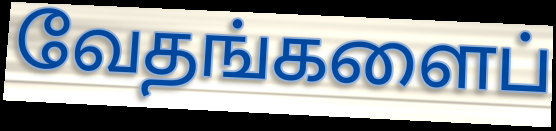
வேதங்களைப்